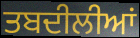
ਤਬਦੀਲੀਆਂ